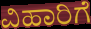
ವಿಹಾರಿಗೆ